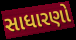
સાધારણો